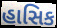
હાસિક